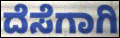
ದೆಸೆಗಾಗಿ